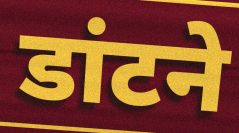
डांटने